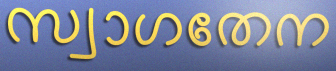
സ്വാഗതേന